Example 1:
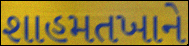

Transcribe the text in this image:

શાહમતખાને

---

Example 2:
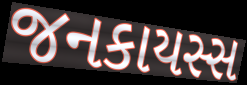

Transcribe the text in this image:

જનકાયસ્સ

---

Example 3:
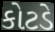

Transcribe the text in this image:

કોટડે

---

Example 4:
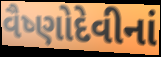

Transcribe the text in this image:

વૈષ્ણોદેવીનાં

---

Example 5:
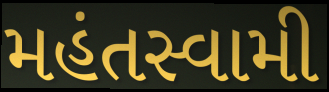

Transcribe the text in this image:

મહંતસ્વામી